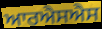
ਆਰਐਸਐਸ